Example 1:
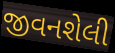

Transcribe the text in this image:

જીવનશેલી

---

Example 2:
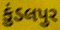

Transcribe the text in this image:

કુંડલપુર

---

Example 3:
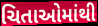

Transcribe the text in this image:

ચિતાઓમાંથી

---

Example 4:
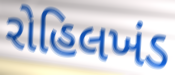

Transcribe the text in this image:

રોહિલખંડ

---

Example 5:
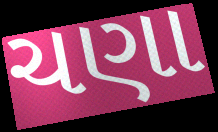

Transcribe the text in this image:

ચણા